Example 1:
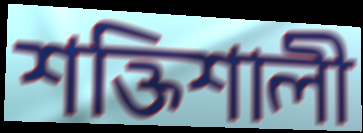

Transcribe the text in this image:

শক্তিশালী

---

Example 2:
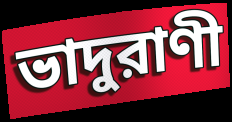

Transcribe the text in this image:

ভাদুরাণী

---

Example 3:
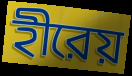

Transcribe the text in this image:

হীরেয়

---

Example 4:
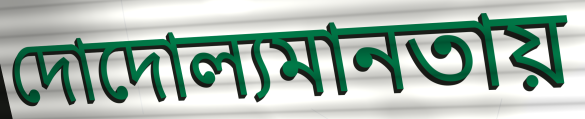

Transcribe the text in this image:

দোদোল্যমানতায়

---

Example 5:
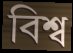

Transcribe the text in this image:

বিশ্ব